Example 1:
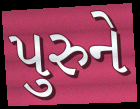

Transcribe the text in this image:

પુરુને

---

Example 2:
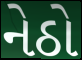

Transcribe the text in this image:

નેઠો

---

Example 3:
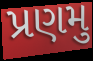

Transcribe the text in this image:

પ્રણમુ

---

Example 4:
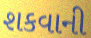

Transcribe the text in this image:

શકવાની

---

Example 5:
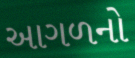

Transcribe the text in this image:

આગળનો